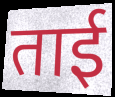
ताई